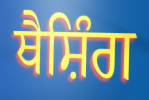
ਥੈਸ਼ਿੰਗ